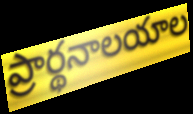
ప్రార్థనాలయాల